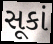
સૂકાં